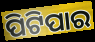
ପିଟିପାର